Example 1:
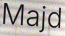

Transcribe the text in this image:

Majd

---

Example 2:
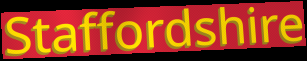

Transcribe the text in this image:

Staffordshire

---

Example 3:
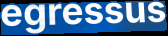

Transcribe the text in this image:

egressus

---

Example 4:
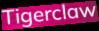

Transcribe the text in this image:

Tigerclaw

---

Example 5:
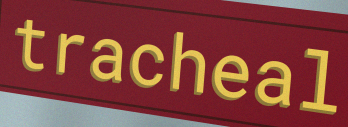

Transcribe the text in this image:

tracheal